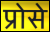
प्रोसे